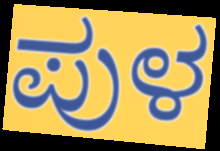
ಪುಳ